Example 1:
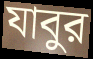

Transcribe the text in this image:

যাবুর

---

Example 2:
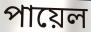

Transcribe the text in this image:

পায়েল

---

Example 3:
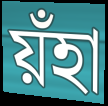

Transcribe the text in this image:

য়ঁহা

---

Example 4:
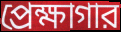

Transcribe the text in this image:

প্রেক্ষাগার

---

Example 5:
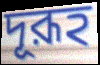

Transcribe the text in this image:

দূরূহ